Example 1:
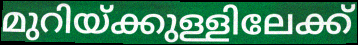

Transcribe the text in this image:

മുറിയ്ക്കുള്ളിലേക്ക്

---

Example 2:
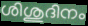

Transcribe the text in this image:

ശിശുദിനം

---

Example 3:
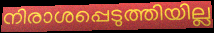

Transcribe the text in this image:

നിരാശപ്പെടുത്തിയില്ല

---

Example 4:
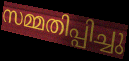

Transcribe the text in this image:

സമ്മതിപ്പിച്ചു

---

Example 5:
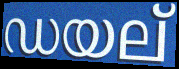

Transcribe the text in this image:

ഡയല്